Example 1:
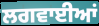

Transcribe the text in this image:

ਲਗਵਾਈਆਂ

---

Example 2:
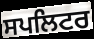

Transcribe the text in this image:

ਸਪਲਿਟਰ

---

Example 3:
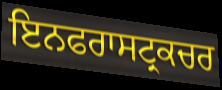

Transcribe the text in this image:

ਇਨਫਰਾਸਟ੍ਰਕਚਰ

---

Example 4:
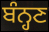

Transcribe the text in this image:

ਬੰਨ੍ਹਣ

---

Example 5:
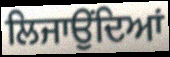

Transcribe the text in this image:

ਲਿਜਾਉਂਦਿਆਂ